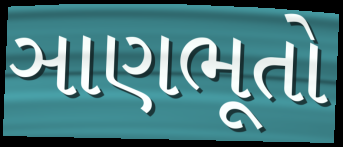
ઞાણભૂતો